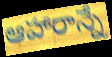
ఆహారాన్నే